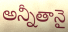
అన్నీతానై